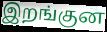
இறங்குன